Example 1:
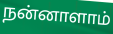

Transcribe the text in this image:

நன்னாளாம்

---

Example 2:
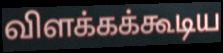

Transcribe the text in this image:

விளக்கக்கூடிய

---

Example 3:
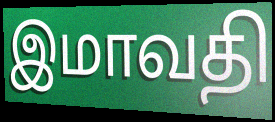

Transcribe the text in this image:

இமாவதி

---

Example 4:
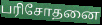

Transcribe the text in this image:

பரிசோதனை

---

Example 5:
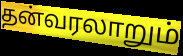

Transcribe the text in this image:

தன்வரலாறும்